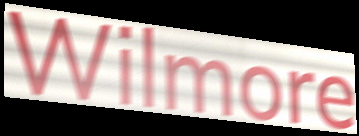
Wilmore